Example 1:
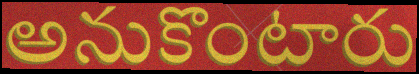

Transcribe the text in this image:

అనుకొంటారు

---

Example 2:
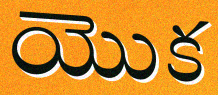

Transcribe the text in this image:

యొక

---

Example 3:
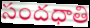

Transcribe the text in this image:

సందధాతి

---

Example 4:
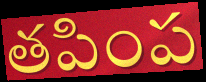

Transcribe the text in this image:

తపింప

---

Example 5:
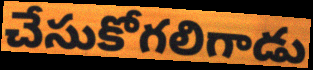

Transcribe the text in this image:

చేసుకోగలిగాడు